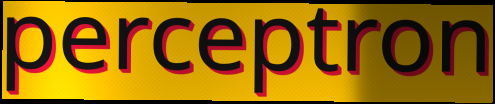
perceptron